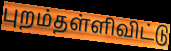
புறம்தள்ளிவிட்டு